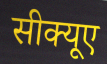
सीक्यूए